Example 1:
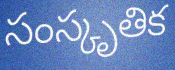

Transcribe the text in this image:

సంస్కృతిక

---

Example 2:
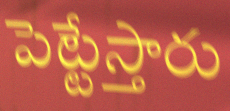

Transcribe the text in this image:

పెట్టేస్తారు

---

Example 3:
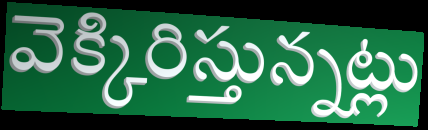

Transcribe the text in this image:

వెక్కిరిస్తున్నట్లు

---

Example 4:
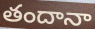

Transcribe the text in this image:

తందానా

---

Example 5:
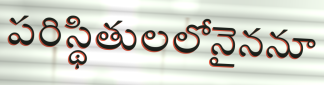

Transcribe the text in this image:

పరిస్థితులలోనైననూ